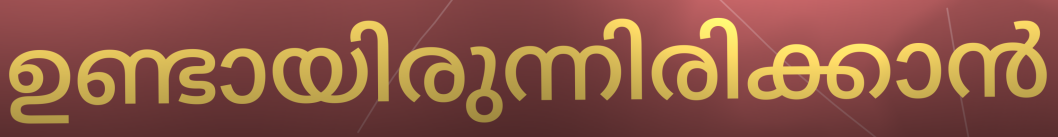
ഉണ്ടായിരുന്നിരിക്കാൻ